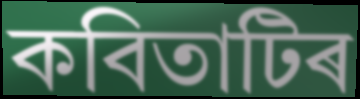
কবিতাটিৰ